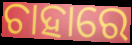
ଚାହାରେ